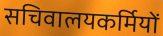
सचिवालयकर्मियों